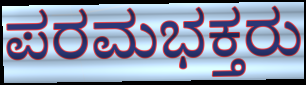
ಪರಮಭಕ್ತರು